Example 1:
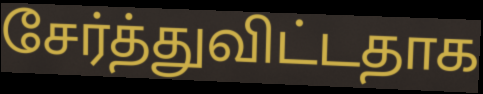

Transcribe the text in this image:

சேர்த்துவிட்டதாக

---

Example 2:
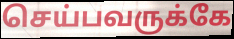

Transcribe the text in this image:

செய்பவருக்கே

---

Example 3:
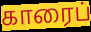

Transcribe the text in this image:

காரைப்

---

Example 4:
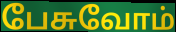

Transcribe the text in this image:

பேசுவோம்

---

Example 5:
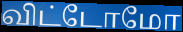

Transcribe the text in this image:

விட்டோமோ